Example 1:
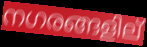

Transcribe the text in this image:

നഗരങ്ങളില്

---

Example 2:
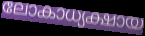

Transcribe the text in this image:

ലോകാധ്യക്ഷായ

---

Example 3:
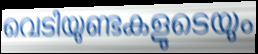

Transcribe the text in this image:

വെടിയുണ്ടകളുടെയും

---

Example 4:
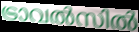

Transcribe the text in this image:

ട്രാവൽസിൽ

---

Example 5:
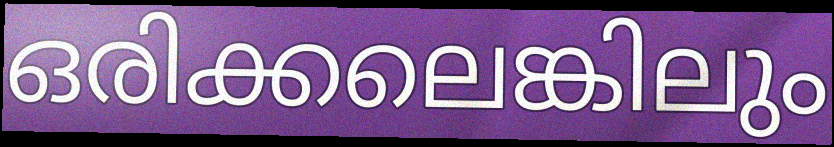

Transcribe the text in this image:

ഒരിക്കലെങ്കിലും